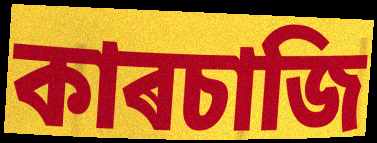
কাৰচাজি